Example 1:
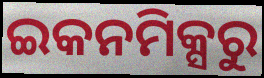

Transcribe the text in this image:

ଇକନମିକ୍ସରୁ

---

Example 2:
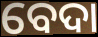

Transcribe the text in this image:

ବେଦା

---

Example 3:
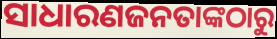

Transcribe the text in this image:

ସାଧାରଣଜନତାଙ୍କଠାରୁ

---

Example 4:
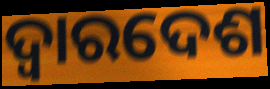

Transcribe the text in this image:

ଦ୍ଵାରଦେଶ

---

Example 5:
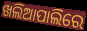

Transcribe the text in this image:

ଖଲିଆପାଲିରେ